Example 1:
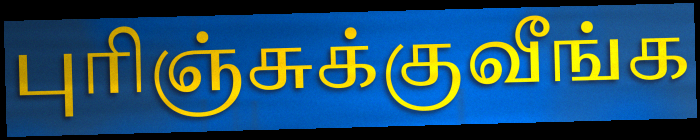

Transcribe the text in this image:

புரிஞ்சுக்குவீங்க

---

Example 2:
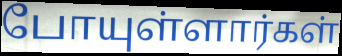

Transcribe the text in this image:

போயுள்ளார்கள்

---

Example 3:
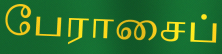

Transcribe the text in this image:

பேராசைப்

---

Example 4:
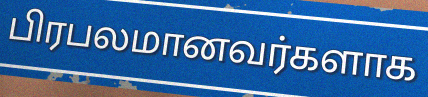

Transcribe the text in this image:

பிரபலமானவர்களாக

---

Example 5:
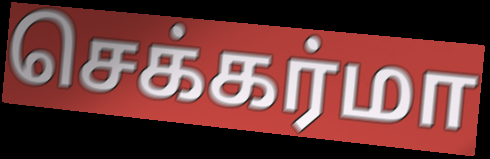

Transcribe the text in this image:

செக்கர்மா